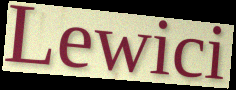
Lewici